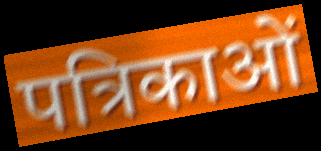
पत्रिकाओं